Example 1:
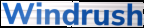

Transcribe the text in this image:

Windrush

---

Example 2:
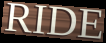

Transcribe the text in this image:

RIDE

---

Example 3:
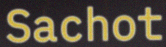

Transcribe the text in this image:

Sachot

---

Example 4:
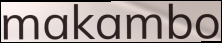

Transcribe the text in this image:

makambo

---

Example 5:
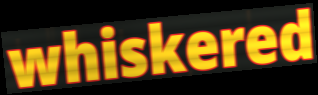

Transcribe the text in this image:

whiskered